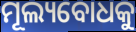
ମୂଲ୍ୟବୋଧକୁ